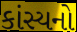
કાંસ્યનો